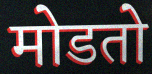
मोडतो